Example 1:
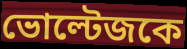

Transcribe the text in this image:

ভোল্টেজকে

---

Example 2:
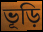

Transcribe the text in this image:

ভূড়ি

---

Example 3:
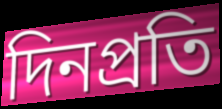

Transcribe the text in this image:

দিনপ্রতি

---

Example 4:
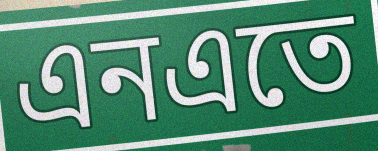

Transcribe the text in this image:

এনএতে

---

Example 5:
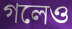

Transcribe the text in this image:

গলেও